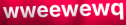
wweewewq